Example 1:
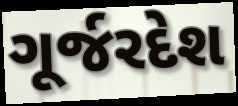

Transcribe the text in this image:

ગૂર્જરદેશ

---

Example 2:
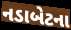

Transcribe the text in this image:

નડાબેટના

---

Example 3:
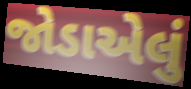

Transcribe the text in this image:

જોડાએલું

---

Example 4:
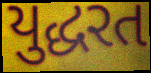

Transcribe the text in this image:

યુદ્ધરત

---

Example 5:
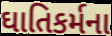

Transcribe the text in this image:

ઘાતિકર્મના